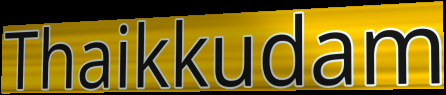
Thaikkudam